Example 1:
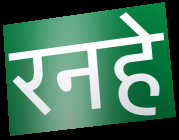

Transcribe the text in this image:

रनहे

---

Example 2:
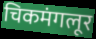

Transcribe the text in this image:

चिकमंगलूर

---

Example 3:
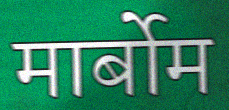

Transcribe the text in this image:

मार्बोम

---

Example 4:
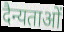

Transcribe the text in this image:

दैन्यताओं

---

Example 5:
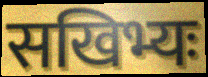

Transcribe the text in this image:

सखिभ्यः